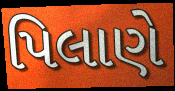
પિલાણે